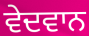
ਵੇਦਵਾਨ